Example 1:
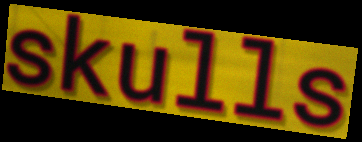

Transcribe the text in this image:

skulls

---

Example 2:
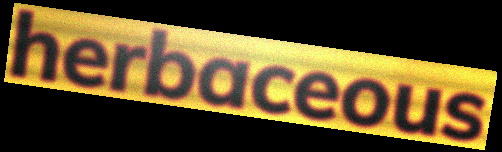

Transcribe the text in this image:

herbaceous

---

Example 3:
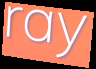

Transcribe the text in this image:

ray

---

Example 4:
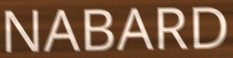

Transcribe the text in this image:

NABARD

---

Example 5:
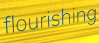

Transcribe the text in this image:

flourishing